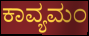
ಕಾವ್ಯಮಂ